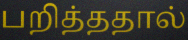
பறித்ததால்